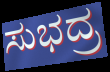
ಸುಭದ್ರ